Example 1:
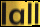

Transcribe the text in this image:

lall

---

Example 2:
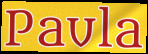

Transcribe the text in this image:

Paula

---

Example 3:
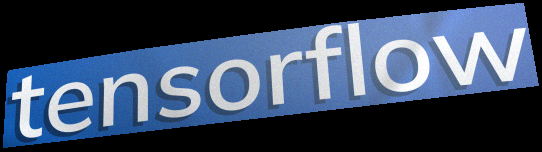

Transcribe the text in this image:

tensorflow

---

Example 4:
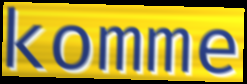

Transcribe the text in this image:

komme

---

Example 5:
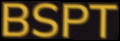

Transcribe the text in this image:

BSPT